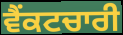
ਵੈਂਕਟਚਾਰੀ